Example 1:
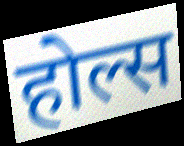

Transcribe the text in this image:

होल्स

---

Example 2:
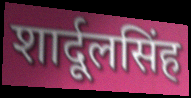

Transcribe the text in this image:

शार्दूलसिंह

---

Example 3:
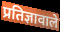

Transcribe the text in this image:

प्रतिज्ञावाले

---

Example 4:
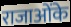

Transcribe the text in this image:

राजाओंके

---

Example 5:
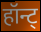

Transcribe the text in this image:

हॉन्ट्